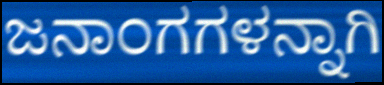
ಜನಾಂಗಗಳನ್ನಾಗಿ